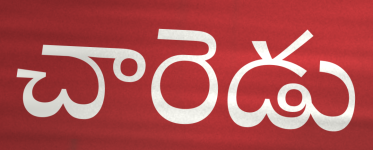
చారెడు